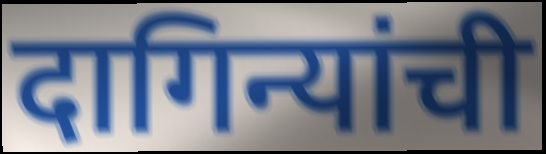
दागिन्यांची